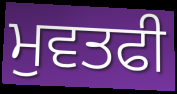
ਮੁਵਤਫੀ